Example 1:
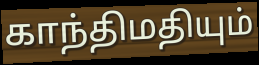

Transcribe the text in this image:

காந்திமதியும்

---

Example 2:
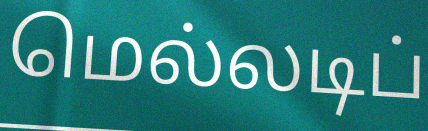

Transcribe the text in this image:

மெல்லடிப்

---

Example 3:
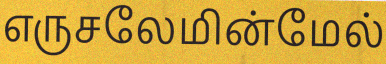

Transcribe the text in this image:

எருசலேமின்மேல்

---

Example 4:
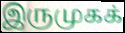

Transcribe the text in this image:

இருமுகக்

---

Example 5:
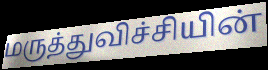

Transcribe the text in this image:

மருத்துவிச்சியின்